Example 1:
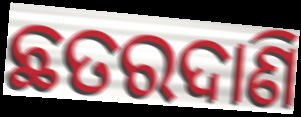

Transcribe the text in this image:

ଛତରଦାଣି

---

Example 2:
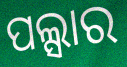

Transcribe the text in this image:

ପଲ୍ସାର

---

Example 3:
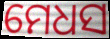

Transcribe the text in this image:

ମେଧସ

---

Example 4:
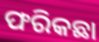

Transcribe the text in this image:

ଫରିକଛା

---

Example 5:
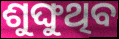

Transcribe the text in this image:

ଶୁଙ୍ଘୁଥିବ